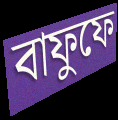
বাফুফে